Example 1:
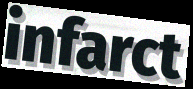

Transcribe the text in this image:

infarct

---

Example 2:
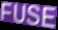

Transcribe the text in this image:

FUSE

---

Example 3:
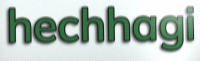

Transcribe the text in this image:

hechhagi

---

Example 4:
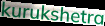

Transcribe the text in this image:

kurukshetra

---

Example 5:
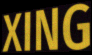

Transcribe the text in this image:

XING